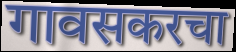
गावसकरचा